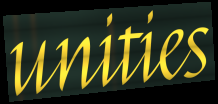
unities